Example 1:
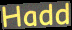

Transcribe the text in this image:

Hadd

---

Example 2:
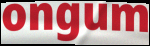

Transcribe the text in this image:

ongum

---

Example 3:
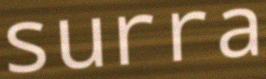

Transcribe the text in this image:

surra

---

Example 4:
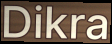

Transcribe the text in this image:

Dikra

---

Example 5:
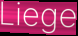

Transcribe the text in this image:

Liege